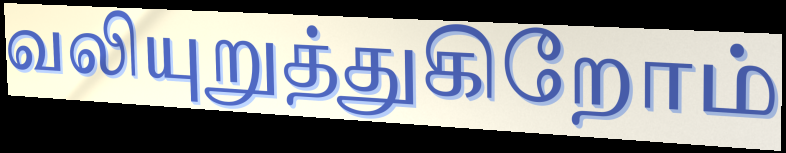
வலியுறுத்துகிறோம்